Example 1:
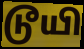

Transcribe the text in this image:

டூயி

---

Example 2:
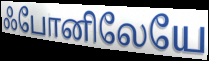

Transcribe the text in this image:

ஃபோனிலேயே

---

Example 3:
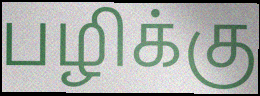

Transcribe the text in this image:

பழிக்கு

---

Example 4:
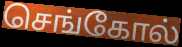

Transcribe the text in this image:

செங்கோல்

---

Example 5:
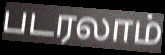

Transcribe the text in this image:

படரலாம்